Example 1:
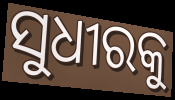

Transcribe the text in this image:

ସୁଧୀରକୁ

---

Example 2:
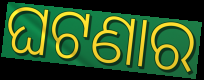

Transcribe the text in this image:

ଘଟଣାର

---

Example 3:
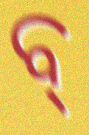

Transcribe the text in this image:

ବ୍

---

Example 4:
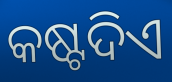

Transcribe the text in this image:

କଷ୍ଟଦିଏ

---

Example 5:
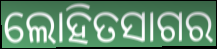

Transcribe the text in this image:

ଲୋହିତସାଗର